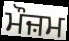
ਮੌਜ਼ਮ